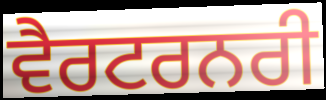
ਵੈਰਟਰਨਰੀ